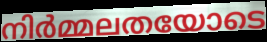
നിർമ്മലതയോടെ